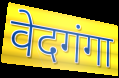
वेदगंगा